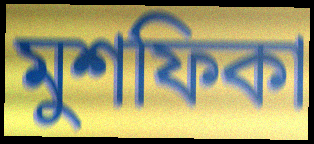
মুশফিকা